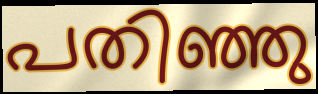
പതിഞ്ഞു